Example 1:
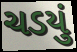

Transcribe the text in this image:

ચડયું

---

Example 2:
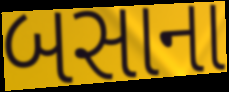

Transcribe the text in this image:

બસાના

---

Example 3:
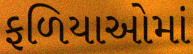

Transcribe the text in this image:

ફળિયાઓમાં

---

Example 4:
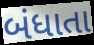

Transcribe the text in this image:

બંધાતા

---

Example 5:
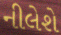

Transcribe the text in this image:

નીલેશે